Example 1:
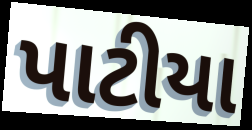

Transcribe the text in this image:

પાટીયા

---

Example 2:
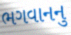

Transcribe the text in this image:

ભગવાનનુ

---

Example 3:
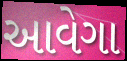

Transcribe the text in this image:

આવેગા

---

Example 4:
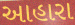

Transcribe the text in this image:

આહારા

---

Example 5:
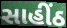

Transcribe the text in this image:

સાહીંઠ